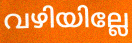
വഴിയില്ലേ